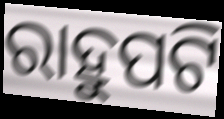
ରାହୁପଟି